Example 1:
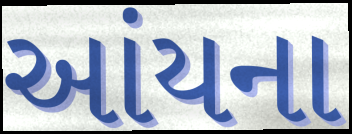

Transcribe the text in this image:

આંયના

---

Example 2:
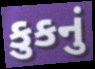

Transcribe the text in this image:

કુકનું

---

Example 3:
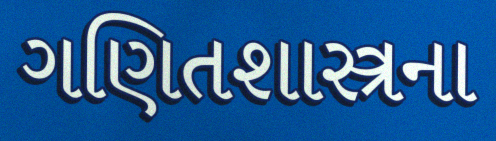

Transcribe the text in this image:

ગણિતશાસ્ત્રના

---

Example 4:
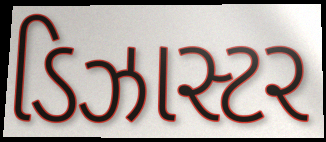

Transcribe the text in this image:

ડિઝાસ્ટર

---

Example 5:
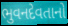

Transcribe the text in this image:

ભુવનદેવતાનો